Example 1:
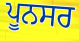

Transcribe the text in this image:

ਪੂਨਸਰ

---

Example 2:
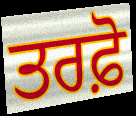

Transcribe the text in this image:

ਤਰਫ਼ੋ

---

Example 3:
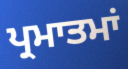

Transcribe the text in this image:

ਪ੍ਰਮਾਤਮਾਂ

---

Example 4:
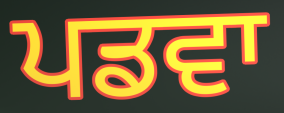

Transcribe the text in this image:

ਪਡਵਾ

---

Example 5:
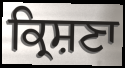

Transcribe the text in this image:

ਕ੍ਰਿਸ਼ਣਾ